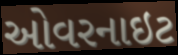
ઓવરનાઇટ